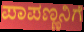
ಪಾಪಣ್ಣನಿಗೆ